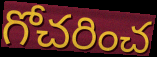
గోచరించ